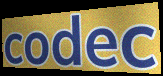
codec